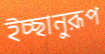
ইচ্ছানুরূপ